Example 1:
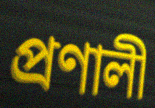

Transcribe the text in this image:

প্রণালী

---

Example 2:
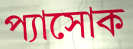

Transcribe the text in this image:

প্যাসোক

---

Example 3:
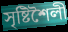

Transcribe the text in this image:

সৃষ্টিশৈলী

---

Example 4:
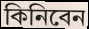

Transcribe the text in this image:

কিনিবেন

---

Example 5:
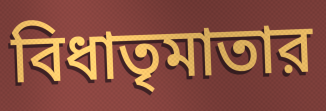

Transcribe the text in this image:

বিধাতৃমাতার